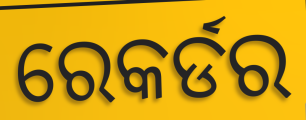
ରେକର୍ଡର